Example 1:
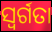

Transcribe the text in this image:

ସ୍ୱର୍ଗତା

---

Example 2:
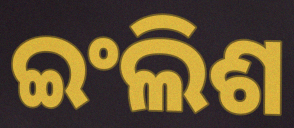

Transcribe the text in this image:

ଇଂଲିଶ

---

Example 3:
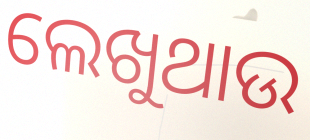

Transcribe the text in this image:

ଲେଖୁଥାଉ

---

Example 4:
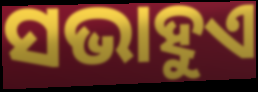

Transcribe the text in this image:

ସଭାହୁଏ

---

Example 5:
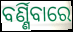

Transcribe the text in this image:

ବର୍ଣ୍ଣିବାରେ